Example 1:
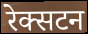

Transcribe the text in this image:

रेक्सटन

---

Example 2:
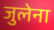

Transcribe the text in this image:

जुलेना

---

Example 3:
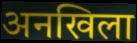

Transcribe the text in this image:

अनखिला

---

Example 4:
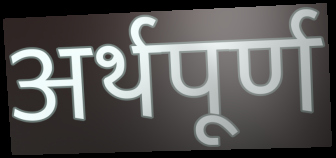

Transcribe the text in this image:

अर्थपूर्ण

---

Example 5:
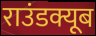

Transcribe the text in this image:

राउंडक्यूब